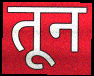
तून